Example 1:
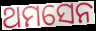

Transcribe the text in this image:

ଥମସେନ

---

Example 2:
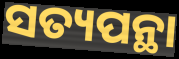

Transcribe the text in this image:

ସତ୍ୟପନ୍ଥା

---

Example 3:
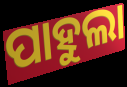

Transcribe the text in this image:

ପାହୁଲା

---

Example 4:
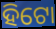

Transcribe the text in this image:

ହିଟୋ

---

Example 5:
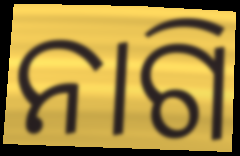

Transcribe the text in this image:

ନାଗି